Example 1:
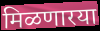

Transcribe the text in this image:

मिळणारया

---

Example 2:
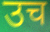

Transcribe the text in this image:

उच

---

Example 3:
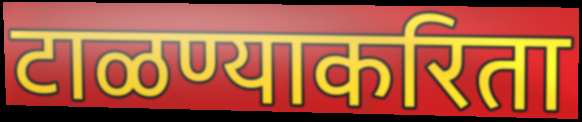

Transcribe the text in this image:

टाळण्याकरिता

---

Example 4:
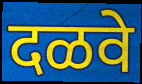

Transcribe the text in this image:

दळवे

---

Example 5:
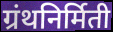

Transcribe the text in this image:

ग्रंथनिर्मिती